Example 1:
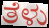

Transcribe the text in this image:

ತೆಳು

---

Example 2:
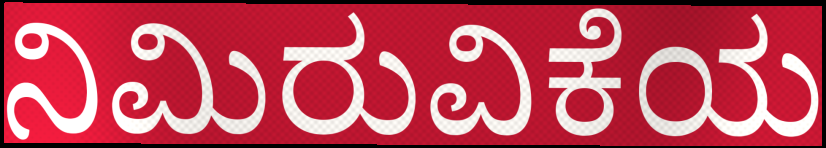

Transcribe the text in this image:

ನಿಮಿರುವಿಕೆಯ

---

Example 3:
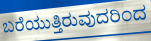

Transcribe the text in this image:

ಬರೆಯುತ್ತಿರುವುದರಿಂದ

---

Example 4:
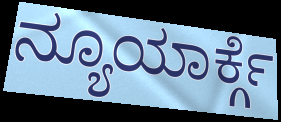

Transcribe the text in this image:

ನ್ಯೂಯಾರ್ಕ್ಗೆ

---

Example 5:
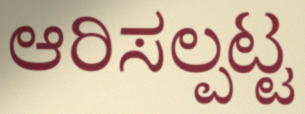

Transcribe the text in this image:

ಆರಿಸಲ್ಪಟ್ಟ